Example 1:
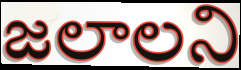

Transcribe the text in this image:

జలాలని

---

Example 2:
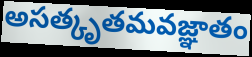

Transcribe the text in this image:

అసత్కృతమవజ్ఞాతం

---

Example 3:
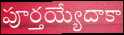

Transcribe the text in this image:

పూర్తయ్యేదాకా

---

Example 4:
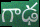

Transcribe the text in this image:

గాఢ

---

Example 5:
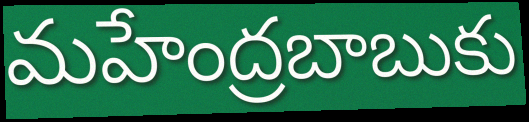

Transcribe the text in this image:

మహేంద్రబాబుకు